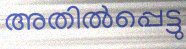
അതിൽപ്പെട്ടു